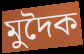
মুদৈক